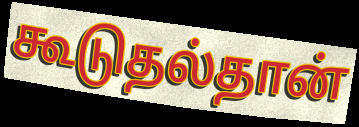
கூடுதல்தான்